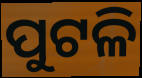
ପୁଟଳି